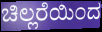
ಚಿಲ್ಲರೆಯಿಂದ